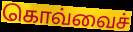
கொவ்வைச்